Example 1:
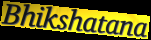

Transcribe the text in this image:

Bhikshatana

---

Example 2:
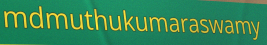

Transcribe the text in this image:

mdmuthukumaraswamy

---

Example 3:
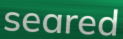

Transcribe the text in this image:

seared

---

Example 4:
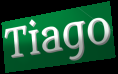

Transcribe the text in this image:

Tiago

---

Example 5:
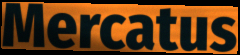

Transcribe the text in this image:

Mercatus